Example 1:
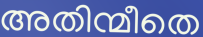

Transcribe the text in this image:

അതിന്മീതെ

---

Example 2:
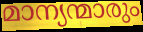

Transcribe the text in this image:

മാന്യന്മാരും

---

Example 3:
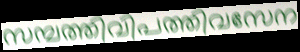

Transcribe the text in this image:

സമ്പത്തിവിപത്തിവസേന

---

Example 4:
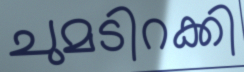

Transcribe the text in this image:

ചുമടിറക്കി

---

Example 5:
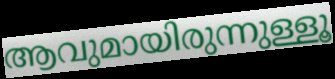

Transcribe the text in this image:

ആവുമായിരുന്നുള്ളൂ